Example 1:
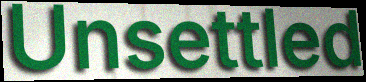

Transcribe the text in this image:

Unsettled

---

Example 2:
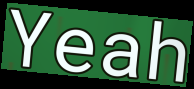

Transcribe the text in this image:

Yeah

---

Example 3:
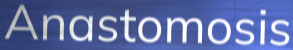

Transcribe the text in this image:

Anastomosis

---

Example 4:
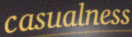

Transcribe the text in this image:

casualness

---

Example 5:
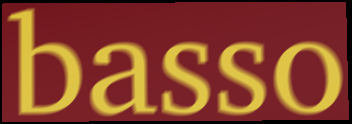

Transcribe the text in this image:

basso